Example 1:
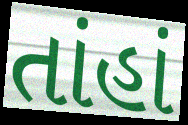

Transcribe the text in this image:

તાંહાં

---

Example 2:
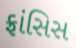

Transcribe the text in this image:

ફ્રાંસિસ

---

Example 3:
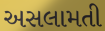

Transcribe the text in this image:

અસલામતી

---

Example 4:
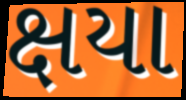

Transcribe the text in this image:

ક્ષયા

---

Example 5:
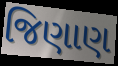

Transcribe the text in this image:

જિણાણ